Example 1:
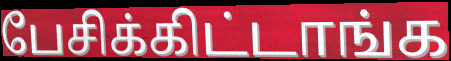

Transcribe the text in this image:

பேசிக்கிட்டாங்க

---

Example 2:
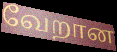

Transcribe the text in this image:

வேறான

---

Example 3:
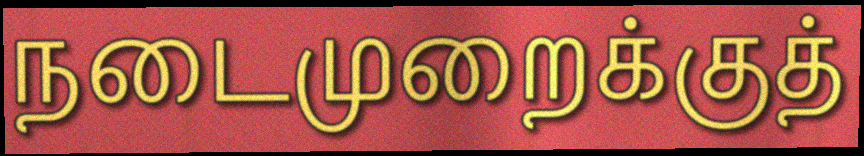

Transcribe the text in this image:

நடைமுறைக்குத்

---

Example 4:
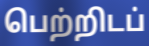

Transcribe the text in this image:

பெற்றிடப்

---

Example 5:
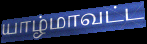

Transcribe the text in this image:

யாழ்மாவட்ட